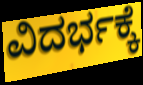
ವಿದರ್ಭಕ್ಕೆ